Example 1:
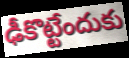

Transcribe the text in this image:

ఢీకొట్టేందుకు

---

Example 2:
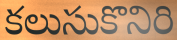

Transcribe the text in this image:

కలుసుకొనిరి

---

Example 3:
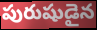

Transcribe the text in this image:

పురుషుడైన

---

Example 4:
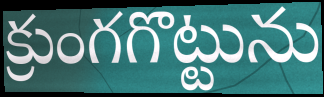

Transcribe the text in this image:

క్రుంగగొట్టును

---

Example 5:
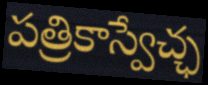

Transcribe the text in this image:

పత్రికాస్వేచ్ఛ